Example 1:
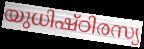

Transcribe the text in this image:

യുധിഷ്ഠിരസ്യ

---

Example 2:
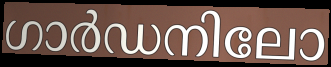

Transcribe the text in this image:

ഗാർഡനിലോ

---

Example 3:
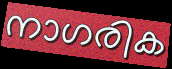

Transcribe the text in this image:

നാഗരിക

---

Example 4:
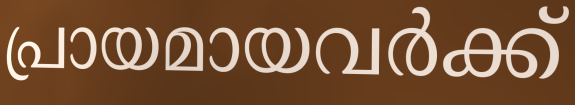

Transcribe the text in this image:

പ്രായമായവർക്ക്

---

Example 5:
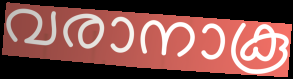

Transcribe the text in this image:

വരാനാകൂ